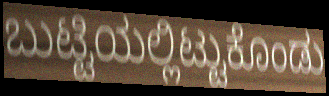
ಬುಟ್ಟಿಯಲ್ಲಿಟ್ಟುಕೊಂಡು